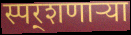
स्पर्शणाऱ्या